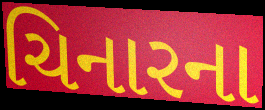
ચિનારના